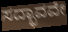
ಸದ್ಭಾವವೇ